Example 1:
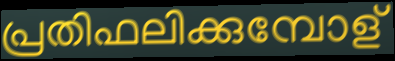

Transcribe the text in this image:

പ്രതിഫലിക്കുമ്പോള്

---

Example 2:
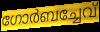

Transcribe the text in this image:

ഗോർബച്ചേവ്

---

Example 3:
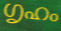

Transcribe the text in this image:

ഗൃഹം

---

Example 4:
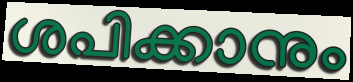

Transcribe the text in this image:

ശപിക്കാനും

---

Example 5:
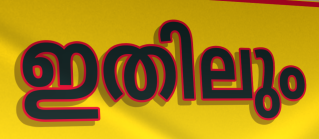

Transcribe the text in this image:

ഇതിലും